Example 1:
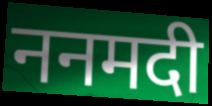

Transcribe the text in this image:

ननमदी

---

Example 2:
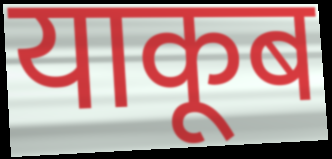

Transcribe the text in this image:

याकूब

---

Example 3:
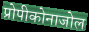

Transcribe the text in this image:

प्रोपीकोनाजोल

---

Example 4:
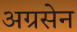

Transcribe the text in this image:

अग्रसेन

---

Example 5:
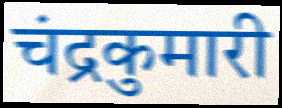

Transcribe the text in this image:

चंद्रकुमारी